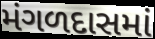
મંગળદાસમાં